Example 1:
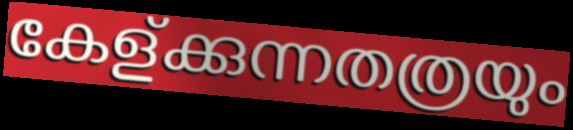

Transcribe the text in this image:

കേള്ക്കുന്നതത്രയും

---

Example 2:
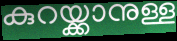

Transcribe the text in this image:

കുറയ്ക്കാനുള്ള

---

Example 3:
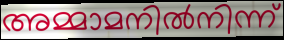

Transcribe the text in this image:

അമ്മാമനിൽനിന്ന്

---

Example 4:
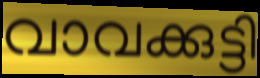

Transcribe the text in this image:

വാവക്കുട്ടി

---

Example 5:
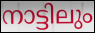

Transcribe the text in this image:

നാട്ടിലും